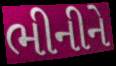
ભીનીને